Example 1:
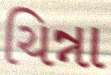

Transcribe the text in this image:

ચિન્ના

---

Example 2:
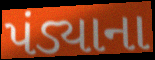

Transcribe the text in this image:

પંડ્યાના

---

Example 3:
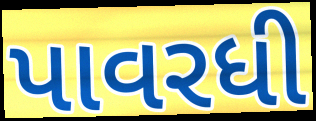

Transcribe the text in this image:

પાવરધી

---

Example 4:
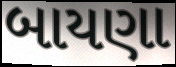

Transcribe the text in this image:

બાયણા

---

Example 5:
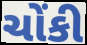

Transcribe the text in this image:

ચોંકી